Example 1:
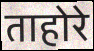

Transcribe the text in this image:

ताहोरे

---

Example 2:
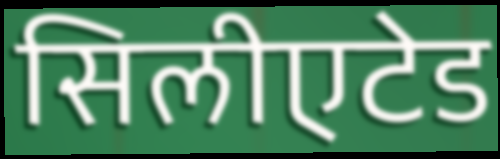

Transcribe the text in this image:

सिलीएटेड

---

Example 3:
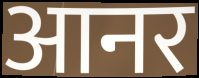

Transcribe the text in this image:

आनर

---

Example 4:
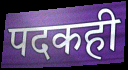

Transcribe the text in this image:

पदकही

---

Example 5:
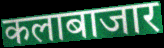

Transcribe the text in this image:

कलाबाजार